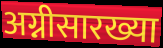
अग्नीसारख्या